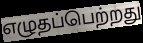
எழுதப்பெற்றது